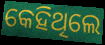
କେହିଥିଲେ